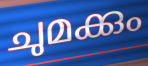
ചുമക്കും